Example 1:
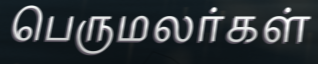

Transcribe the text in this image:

பெருமலர்கள்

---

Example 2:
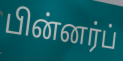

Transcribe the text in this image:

பின்னர்ப்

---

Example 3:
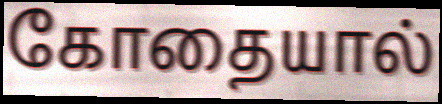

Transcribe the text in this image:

கோதையால்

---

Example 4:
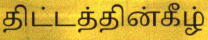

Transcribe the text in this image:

திட்டத்தின்கீழ்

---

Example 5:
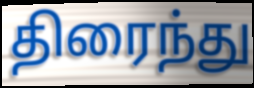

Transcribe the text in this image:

திரைந்து